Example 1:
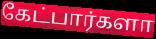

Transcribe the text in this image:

கேட்பார்களா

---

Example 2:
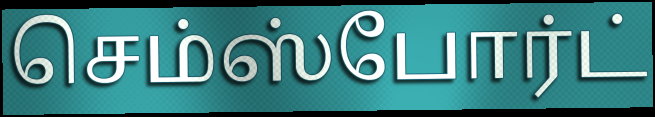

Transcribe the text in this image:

செம்ஸ்போர்ட்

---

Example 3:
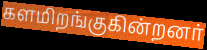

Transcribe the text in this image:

களமிறங்குகின்றனர்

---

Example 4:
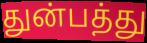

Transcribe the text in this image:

துன்பத்து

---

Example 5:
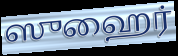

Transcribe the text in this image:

ஸுஹைர்